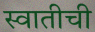
स्वातीची